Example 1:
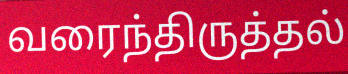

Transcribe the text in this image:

வரைந்திருத்தல்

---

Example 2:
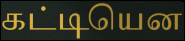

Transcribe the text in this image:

கட்டியென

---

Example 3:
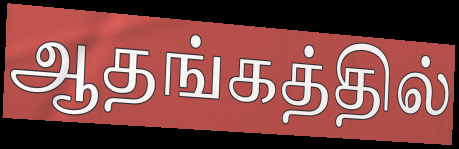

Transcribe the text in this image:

ஆதங்கத்தில்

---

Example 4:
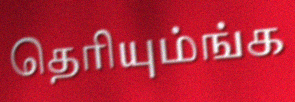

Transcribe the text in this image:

தெரியும்ங்க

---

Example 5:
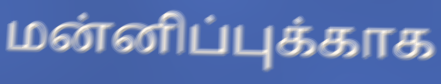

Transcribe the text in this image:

மன்னிப்புக்காக